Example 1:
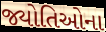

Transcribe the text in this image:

જ્યોતિઓના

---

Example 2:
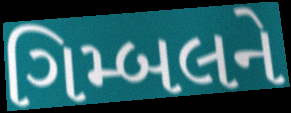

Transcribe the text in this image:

ગિમ્બલને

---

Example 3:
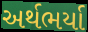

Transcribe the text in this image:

અર્થભર્યા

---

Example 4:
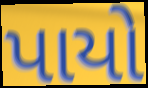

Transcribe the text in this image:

પાયો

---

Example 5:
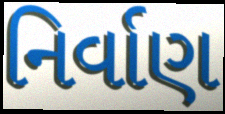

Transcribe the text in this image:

નિર્વાણ